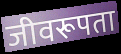
जीवरूपता